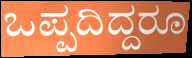
ಒಪ್ಪದಿದ್ದರೂ